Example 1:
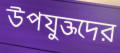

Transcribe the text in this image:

উপযুক্তদের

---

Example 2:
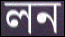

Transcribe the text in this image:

লন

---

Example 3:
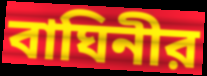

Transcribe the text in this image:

বাঘিনীর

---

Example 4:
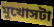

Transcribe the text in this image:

মুখোসটা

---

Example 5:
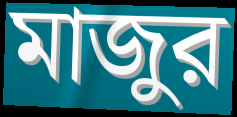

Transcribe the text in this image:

মাজুর